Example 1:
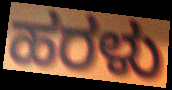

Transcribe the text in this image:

ಹರಳು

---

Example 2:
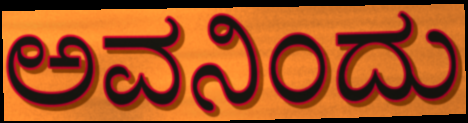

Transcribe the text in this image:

ಅವನಿಂದು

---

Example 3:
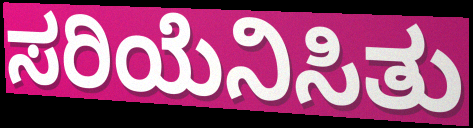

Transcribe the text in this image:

ಸರಿಯೆನಿಸಿತು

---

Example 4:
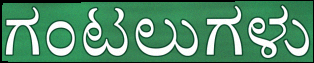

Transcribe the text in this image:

ಗಂಟಲುಗಳು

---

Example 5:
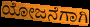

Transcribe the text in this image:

ಯೋಜನೆಗಾಗಿ